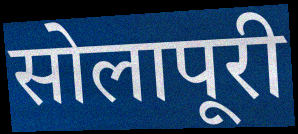
सोलापूरी